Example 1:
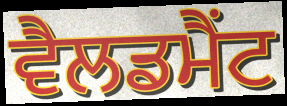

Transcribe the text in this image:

ਵੈਲਡਮੈਂਟ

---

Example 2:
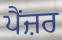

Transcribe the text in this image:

ਪੈਂਜ਼ਰ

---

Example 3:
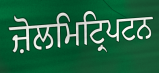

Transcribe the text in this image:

ਜ਼ੋਲਮਿਟ੍ਰਿਪਟਨ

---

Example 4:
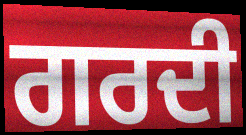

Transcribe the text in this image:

ਗਰਦੀ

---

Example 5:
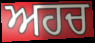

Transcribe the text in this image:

ਅਹਚ